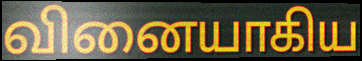
வினையாகிய